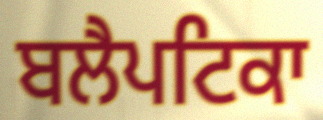
ਬਲੈਪਟਿਕਾ